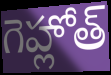
గెహ్లోత్